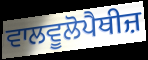
ਵਾਲਵੂਲੋਪੈਥੀਜ਼